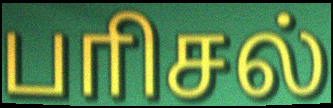
பரிசல்